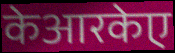
केआरकेए